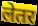
लेतर